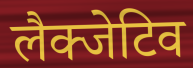
लैक्जेटिव